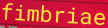
fimbriae